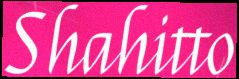
Shahitto